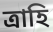
ত্রাহি